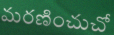
మరణించుచో